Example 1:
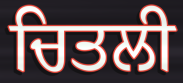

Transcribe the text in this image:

ਚਿਤਲੀ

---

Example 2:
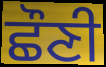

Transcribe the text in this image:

ਛੌਣੀ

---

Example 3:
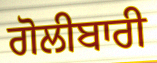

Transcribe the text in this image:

ਗੋਲੀਬਾਰੀ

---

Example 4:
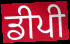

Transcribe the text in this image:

ਡੀਪੀ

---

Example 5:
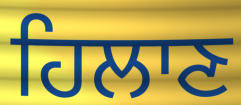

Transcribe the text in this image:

ਹਿਲਾਣ